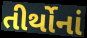
તીર્થોનાં